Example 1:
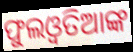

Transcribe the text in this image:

ଫୁଲଓ୍ୱତିଆଙ୍କ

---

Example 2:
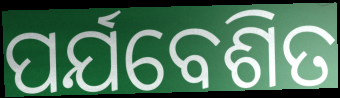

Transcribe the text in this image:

ପର୍ଯବେଶିତ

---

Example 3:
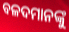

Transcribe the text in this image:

ବଳଦମାନଙ୍କୁ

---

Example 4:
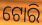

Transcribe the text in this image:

ଟୋରି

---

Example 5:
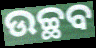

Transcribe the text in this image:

ଉଚ୍ଛବ